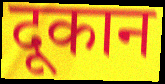
दूकान